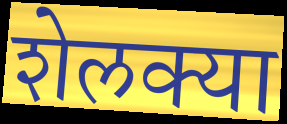
शेलक्या